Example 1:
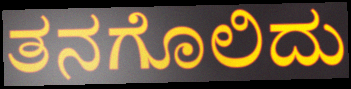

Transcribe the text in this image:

ತನಗೊಲಿದು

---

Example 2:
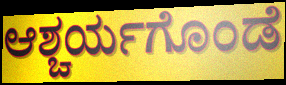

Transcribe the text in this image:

ಆಶ್ಚರ್ಯಗೊಂಡೆ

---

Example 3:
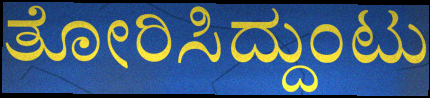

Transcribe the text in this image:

ತೋರಿಸಿದ್ದುಂಟು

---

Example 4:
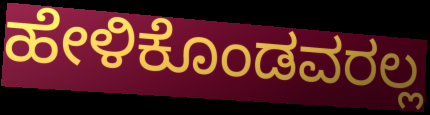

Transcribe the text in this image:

ಹೇಳಿಕೊಂಡವರಲ್ಲ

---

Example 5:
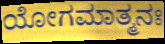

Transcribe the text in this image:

ಯೋಗಮಾತ್ಮನಃ